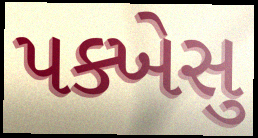
પક્ખેસુ